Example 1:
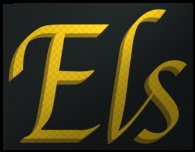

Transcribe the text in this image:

Els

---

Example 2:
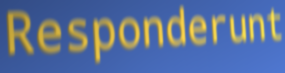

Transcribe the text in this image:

Responderunt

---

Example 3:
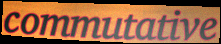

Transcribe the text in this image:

commutative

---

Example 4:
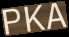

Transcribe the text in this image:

PKA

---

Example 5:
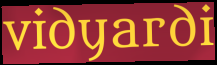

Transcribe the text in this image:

vidyardi